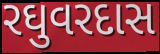
રઘુવરદાસ